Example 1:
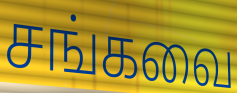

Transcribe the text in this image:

சங்கவை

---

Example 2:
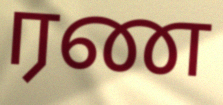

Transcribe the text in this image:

ரண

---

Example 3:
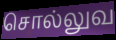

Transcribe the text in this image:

சொல்லுவ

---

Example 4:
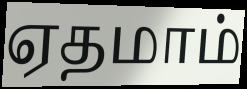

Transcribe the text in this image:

ஏதமாம்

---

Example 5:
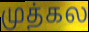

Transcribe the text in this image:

முத்கல